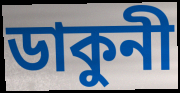
ডাকুনী